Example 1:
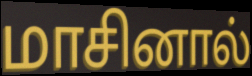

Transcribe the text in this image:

மாசினால்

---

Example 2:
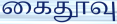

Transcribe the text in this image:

கைதூவு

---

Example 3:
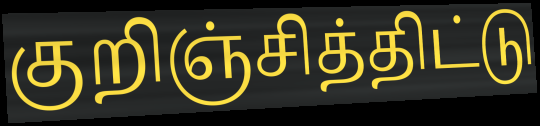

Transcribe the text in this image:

குறிஞ்சித்திட்டு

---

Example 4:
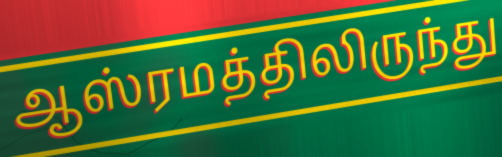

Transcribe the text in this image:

ஆஸ்ரமத்திலிருந்து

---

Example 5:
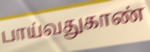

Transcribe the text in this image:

பாய்வதுகாண்